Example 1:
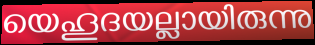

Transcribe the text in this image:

യെഹൂദയല്ലായിരുന്നു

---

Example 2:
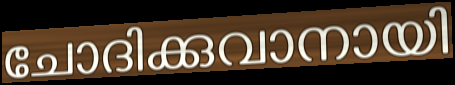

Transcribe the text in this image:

ചോദിക്കുവാനായി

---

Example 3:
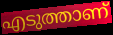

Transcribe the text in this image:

എടുത്താണ്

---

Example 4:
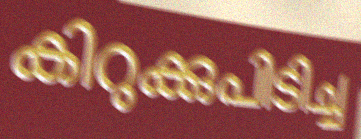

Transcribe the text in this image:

കിറുക്കുപിടിച്ച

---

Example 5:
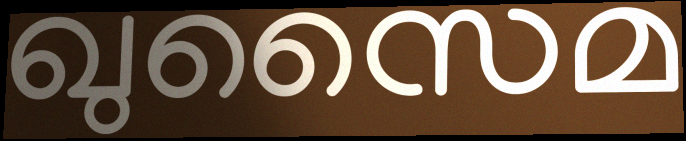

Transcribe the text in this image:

ഖുസൈമ